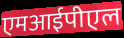
एमआईपीएल